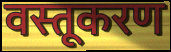
वस्तूकरण